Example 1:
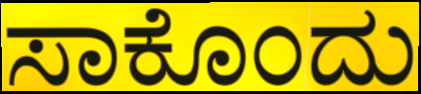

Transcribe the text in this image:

ಸಾಕೊಂದು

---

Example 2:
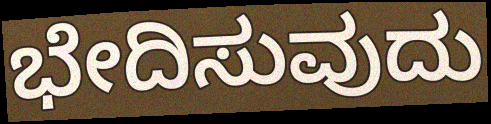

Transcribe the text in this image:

ಭೇದಿಸುವುದು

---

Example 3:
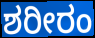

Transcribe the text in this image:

ಶರೀರಂ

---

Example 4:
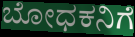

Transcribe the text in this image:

ಬೋಧಕನಿಗೆ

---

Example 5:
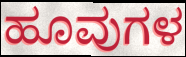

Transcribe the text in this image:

ಹೂವುಗಳ